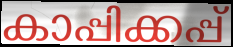
കാപ്പിക്കപ്പ്